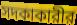
সদকাকারীর